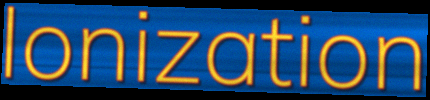
Ionization